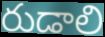
రుడాలి